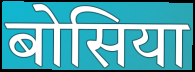
बोसिया